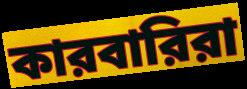
কারবারিরা